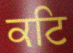
ਕਟਿ